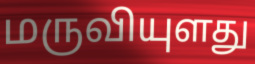
மருவியுளது